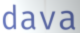
dava